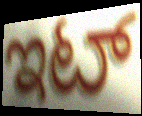
ಇಟ್